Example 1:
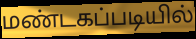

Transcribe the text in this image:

மண்டகப்படியில்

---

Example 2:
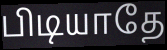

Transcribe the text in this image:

பிடியாதே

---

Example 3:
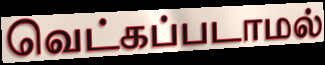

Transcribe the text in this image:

வெட்கப்படாமல்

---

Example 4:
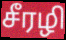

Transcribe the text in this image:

சீரழி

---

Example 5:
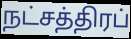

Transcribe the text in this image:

நட்சத்திரப்